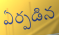
ఏర్పడిన